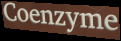
Coenzyme